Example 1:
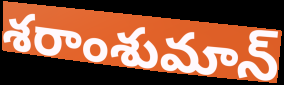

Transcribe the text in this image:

శరాంశుమాన్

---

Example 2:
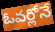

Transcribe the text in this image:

ఓవర్లోనే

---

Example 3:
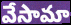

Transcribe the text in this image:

వేసామా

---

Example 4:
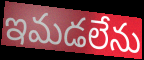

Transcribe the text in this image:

ఇమడలేను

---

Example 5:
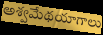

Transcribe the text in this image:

అశ్వమేథయాగాలు